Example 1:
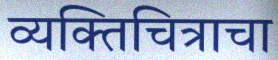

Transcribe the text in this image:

व्यक्तिचित्राचा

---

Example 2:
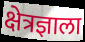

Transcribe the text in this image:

क्षेत्रज्ञाला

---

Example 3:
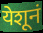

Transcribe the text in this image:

येशूनं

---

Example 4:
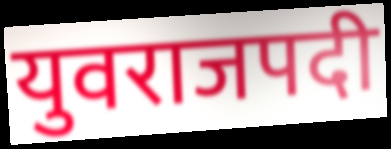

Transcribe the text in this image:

युवराजपदी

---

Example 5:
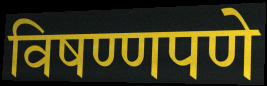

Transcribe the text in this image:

विषण्णपणे